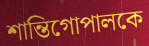
শান্তিগোপালকে